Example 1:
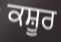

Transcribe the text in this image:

ਕਸ਼ੂਰ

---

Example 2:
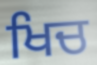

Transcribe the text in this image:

ਖਿਚ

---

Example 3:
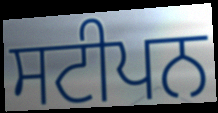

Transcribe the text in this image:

ਸਟੀਪਨ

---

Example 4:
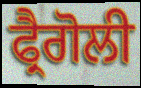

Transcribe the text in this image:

ਫ੍ਰੈਗੋਲੀ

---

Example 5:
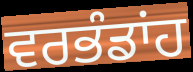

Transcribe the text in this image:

ਵਰਭੰਡਾਂਹ